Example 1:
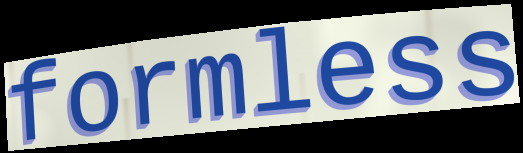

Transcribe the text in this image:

formless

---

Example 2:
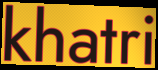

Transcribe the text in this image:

khatri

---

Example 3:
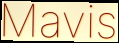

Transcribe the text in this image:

Mavis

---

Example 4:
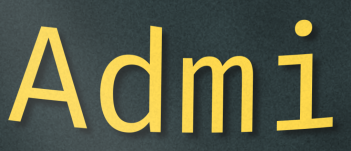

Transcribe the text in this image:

Admi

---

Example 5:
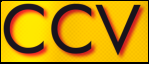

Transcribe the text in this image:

CCV